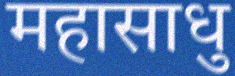
महासाधु